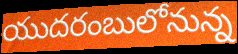
యుదరంబులోనున్న